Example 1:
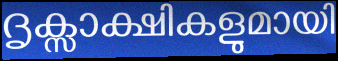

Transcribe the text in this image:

ദൃക്സാക്ഷികളുമായി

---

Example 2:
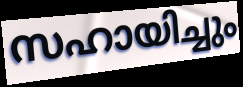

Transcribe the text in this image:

സഹായിച്ചും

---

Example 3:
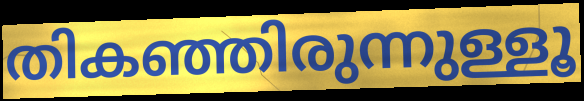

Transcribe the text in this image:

തികഞ്ഞിരുന്നുള്ളൂ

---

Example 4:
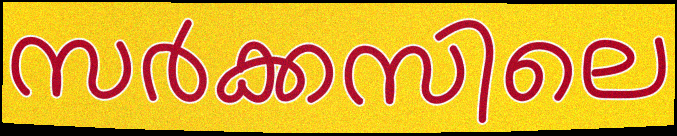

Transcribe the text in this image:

സർക്കസിലെ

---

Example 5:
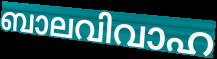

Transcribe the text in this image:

ബാലവിവാഹ